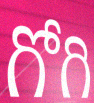
గోగి